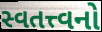
સ્વતત્ત્વનો